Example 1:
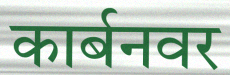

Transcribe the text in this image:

कार्बनवर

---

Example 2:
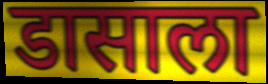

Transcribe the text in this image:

डासाला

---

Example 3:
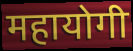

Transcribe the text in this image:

महायोगी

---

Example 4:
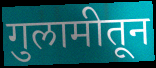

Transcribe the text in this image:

गुलामीतून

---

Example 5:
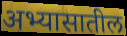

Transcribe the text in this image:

अभ्यासातील